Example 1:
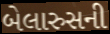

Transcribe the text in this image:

બેલારુસની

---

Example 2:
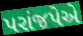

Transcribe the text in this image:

પરાંજપેએ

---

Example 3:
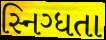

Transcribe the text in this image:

સ્નિગ્ધતા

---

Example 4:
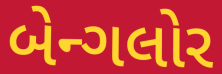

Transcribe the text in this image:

બેન્ગલોર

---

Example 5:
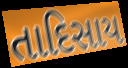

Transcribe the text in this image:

તાદિસાય